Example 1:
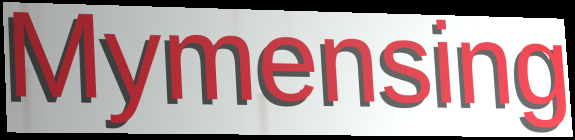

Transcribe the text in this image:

Mymensing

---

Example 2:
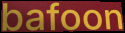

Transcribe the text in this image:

bafoon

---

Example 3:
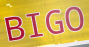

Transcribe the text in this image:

BIGO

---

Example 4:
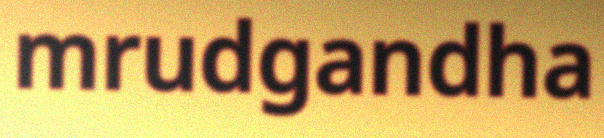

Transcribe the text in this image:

mrudgandha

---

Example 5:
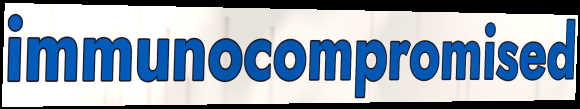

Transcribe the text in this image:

immunocompromised